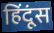
हिंदूंस